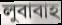
লুবাবাহ